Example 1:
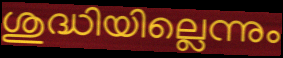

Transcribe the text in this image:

ശുദ്ധിയില്ലെന്നും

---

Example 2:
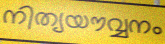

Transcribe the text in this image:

നിത്യയൗവ്വനം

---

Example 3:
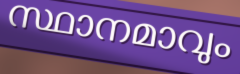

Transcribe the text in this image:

സ്ഥാനമാവും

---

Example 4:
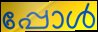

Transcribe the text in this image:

പ്പോൾ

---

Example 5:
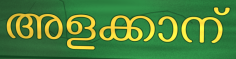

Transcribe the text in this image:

അളക്കാന്